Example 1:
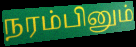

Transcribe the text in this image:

நரம்பினும்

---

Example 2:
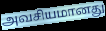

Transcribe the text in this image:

அவசியமானது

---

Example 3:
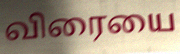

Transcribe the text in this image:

விரையை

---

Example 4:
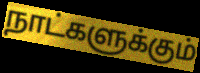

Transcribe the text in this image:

நாட்களுக்கும்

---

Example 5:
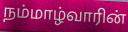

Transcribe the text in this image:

நம்மாழ்வாரின்